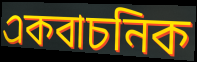
একবাচনিক